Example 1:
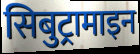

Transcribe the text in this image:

सिबुट्रामाइन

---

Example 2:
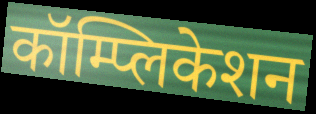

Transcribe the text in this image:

कॉम्प्लिकेशन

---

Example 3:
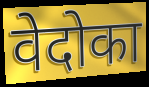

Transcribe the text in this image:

वेदोका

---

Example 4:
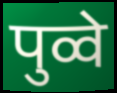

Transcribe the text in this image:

पुव्वे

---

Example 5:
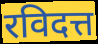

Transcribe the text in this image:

रविदत्त